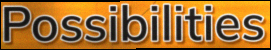
Possibilities